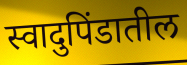
स्वादुपिंडातील